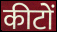
कीटों